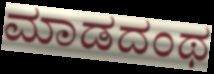
ಮಾಡದಂಥ